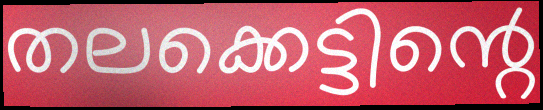
തലക്കെട്ടിന്റെ